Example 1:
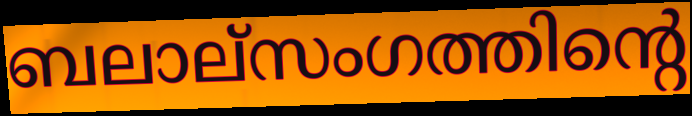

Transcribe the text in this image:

ബലാല്സംഗത്തിന്റെ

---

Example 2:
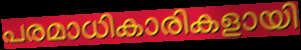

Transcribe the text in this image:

പരമാധികാരികളായി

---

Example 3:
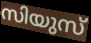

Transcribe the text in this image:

സിയുസ്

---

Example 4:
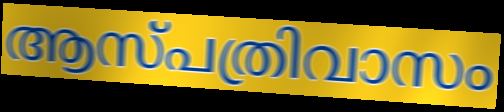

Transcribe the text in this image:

ആസ്പത്രിവാസം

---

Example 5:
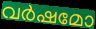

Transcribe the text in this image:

വർഷമോ